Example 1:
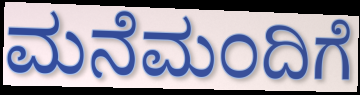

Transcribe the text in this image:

ಮನೆಮಂದಿಗೆ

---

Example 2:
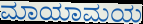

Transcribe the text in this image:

ಮಾಯಾಮಯ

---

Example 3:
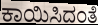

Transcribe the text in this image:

ಕಾಯಿಸಿದಂತೆ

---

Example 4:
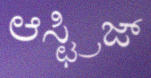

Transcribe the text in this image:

ಆಸ್ಟ್ರಿಜ್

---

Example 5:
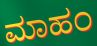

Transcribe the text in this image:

ಮಾಹಂ